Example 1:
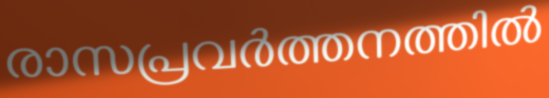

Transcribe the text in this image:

രാസപ്രവർത്തനത്തിൽ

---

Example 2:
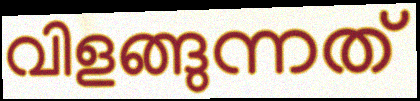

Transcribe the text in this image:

വിളങ്ങുന്നത്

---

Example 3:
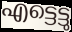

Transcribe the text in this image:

എട്ടെട്ടു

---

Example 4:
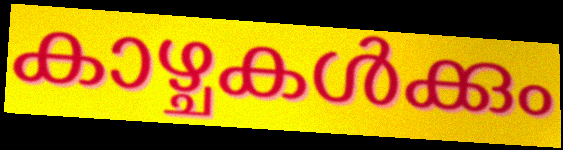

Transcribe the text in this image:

കാഴ്ചകൾക്കും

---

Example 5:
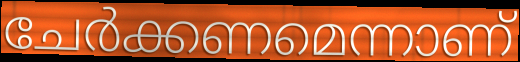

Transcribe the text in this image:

ചേർക്കണമെന്നാണ്